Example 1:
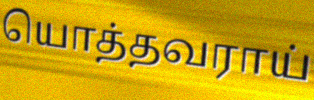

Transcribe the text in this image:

யொத்தவராய்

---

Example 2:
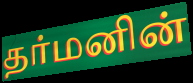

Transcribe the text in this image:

தர்மனின்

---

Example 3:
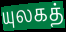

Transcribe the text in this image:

யுலகத்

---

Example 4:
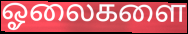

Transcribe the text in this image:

ஓலைகளை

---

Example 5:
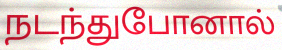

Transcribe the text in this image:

நடந்துபோனால்